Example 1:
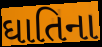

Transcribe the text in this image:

ઘાતિના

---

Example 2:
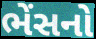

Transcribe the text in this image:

ભેંસનો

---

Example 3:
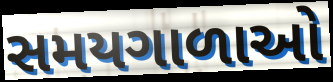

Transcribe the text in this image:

સમયગાળાઓ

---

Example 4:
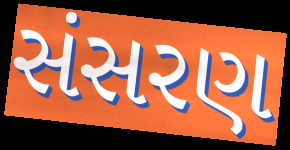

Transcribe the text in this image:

સંસરણ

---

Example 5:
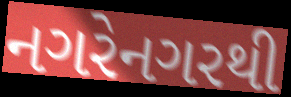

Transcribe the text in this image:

નગરેનગરથી